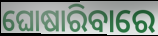
ଘୋଷାରିବାରେ